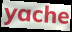
yache